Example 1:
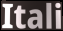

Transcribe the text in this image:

Itali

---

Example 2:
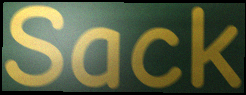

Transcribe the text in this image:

Sack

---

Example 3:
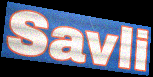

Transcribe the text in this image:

Savli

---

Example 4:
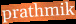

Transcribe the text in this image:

prathmik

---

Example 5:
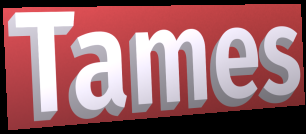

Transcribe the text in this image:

Tames